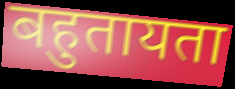
बहुतायता